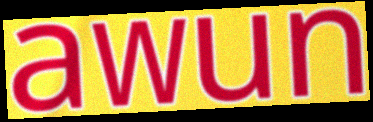
awun